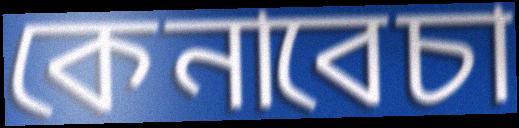
কেনাবেচা